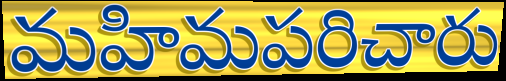
మహిమపరిచారు